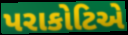
પરાકોટિએ